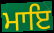
ਮਾਇ